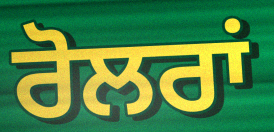
ਰੋਲਰਾਂ